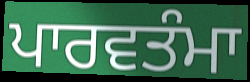
ਪਾਰਵਤੰਮਾ